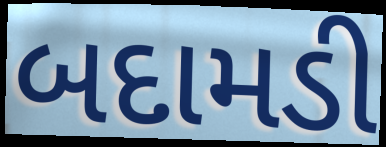
બદામડી